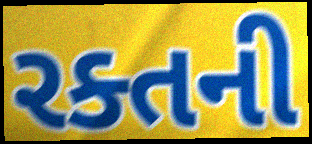
રક્તની